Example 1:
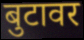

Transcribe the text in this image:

बुटावर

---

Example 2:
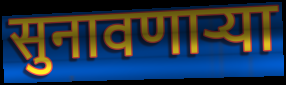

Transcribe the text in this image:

सुनावणाऱ्या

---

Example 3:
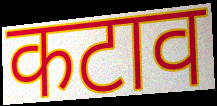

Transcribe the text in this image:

कटाव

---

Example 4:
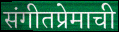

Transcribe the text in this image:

संगीतप्रेमाची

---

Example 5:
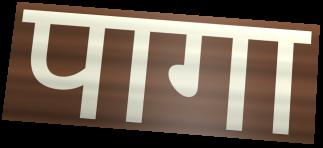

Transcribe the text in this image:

पागा